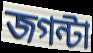
জগন্টা